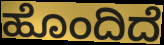
ಹೊಂದಿದೆ